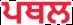
ਪਥਲ